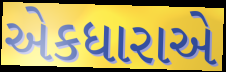
એકધારાએ